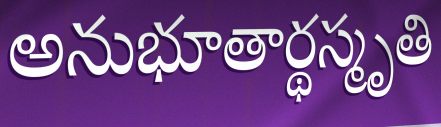
అనుభూతార్థస్మృతి